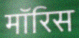
मॉरिस